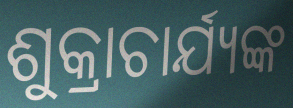
ଶୁକ୍ରାଚାର୍ଯ୍ୟଙ୍କ